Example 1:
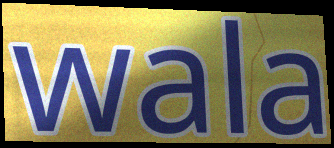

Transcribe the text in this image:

wala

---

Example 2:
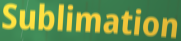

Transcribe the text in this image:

Sublimation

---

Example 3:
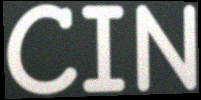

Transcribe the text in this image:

CIN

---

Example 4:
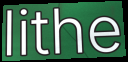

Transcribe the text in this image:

lithe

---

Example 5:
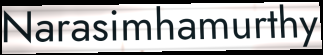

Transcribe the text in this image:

Narasimhamurthy